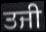
ਤਜੀ